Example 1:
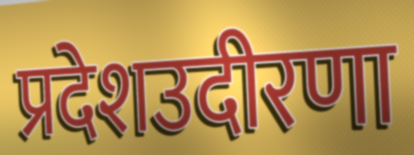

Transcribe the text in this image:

प्रदेशउदीरणा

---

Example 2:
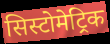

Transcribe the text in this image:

सिस्टोमेट्रिक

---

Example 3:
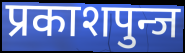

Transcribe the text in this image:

प्रकाशपुन्ज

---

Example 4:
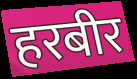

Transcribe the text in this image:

हरबीर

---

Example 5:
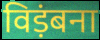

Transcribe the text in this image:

विड़ंबना